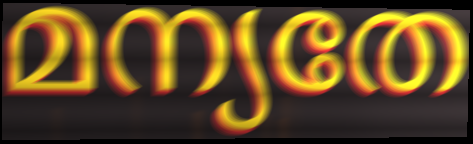
മന്യതേ